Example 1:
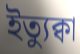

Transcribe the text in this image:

ইত্যুক্বা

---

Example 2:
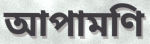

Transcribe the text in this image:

আপামণি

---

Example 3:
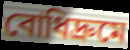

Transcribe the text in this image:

বোধিদ্রুমে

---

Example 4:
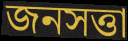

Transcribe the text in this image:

জনসত্তা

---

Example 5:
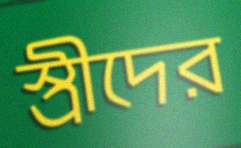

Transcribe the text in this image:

স্ত্রীদের